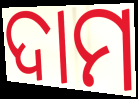
ଦାମ